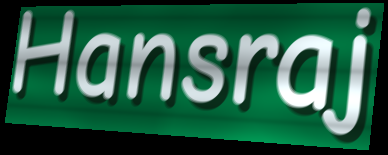
Hansraj